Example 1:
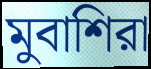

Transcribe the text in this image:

মুবাশিরা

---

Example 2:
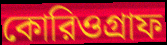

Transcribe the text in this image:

কোরিওগ্রাফ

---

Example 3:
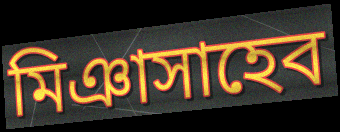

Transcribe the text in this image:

মিঞাসাহেব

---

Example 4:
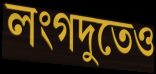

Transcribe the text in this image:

লংগদুতেও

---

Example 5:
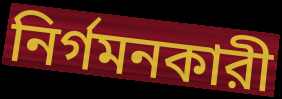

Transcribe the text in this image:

নির্গমনকারী